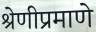
श्रेणीप्रमाणे